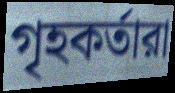
গৃহকর্তারা